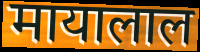
मायालाल